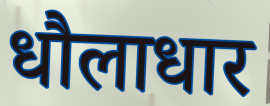
धौलाधार